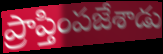
ప్రాప్తింపజేశాడు